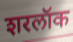
शरलॉक